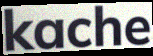
kache